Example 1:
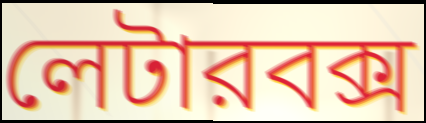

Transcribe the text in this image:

লেটারবক্স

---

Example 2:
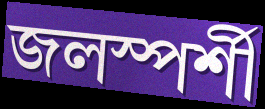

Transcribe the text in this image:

জলস্পর্শী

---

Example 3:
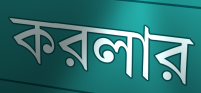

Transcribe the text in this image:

করলার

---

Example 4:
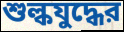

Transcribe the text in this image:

শুল্কযুদ্ধের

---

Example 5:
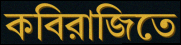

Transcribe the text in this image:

কবিরাজিতে